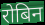
रोबिन